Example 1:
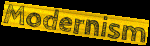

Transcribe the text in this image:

Modernism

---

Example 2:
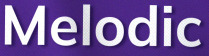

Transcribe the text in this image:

Melodic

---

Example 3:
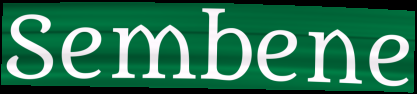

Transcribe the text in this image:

Sembene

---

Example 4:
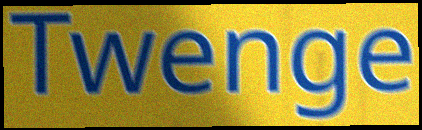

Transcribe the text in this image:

Twenge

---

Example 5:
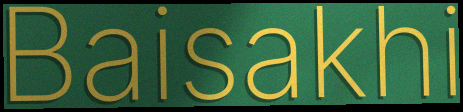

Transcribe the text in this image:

Baisakhi